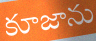
కూజాను